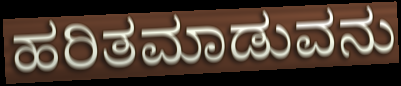
ಹರಿತಮಾಡುವನು